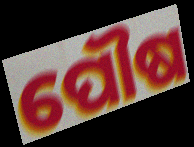
ପୌଷ